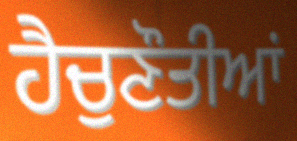
ਹੈਚੁਣੌਤੀਆਂ